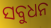
ସବୁଧନ